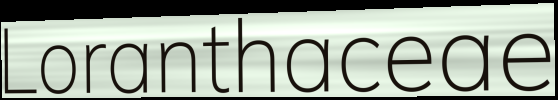
Loranthaceae